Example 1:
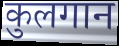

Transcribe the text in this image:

कुलगान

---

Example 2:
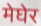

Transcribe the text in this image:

मेघेर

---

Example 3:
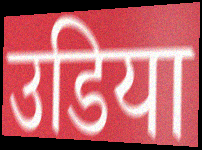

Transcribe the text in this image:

उडिया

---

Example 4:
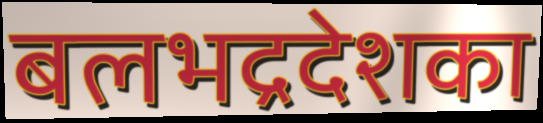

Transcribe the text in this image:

बलभद्रदेशका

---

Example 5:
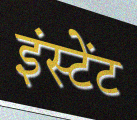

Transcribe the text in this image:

इंस्टेंट